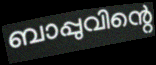
ബാപ്പുവിന്റെ